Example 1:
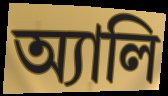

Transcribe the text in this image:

অ্যালি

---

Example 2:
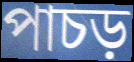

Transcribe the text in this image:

পাচড়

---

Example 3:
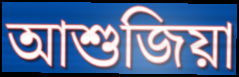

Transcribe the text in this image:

আশুজিয়া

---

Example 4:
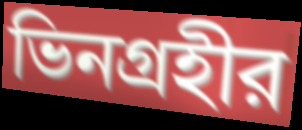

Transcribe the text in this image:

ভিনগ্রহীর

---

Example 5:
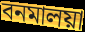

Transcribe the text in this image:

বনমালয়া